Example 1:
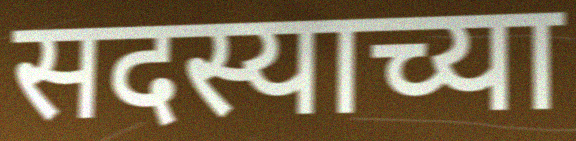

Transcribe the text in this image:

सदस्याच्या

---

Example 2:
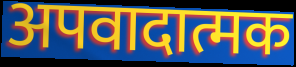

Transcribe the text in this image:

अपवादात्मक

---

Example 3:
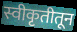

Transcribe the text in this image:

स्वीकृतीतून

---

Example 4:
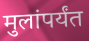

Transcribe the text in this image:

मुलांपर्यंत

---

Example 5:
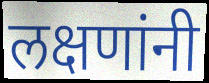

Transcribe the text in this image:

लक्षणांनी